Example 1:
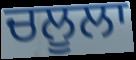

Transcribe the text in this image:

ਚਲੂਲਾ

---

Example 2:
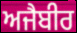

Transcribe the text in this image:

ਅਜੈਬੀਰ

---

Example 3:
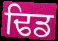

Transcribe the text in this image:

ਢਿਡ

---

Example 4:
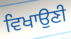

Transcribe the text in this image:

ਵਿਖਾਉਣੀ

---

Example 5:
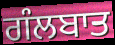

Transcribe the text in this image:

ਗੰਲਬਾਤ